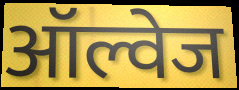
ऑल्वेज